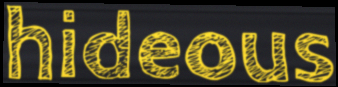
hideous